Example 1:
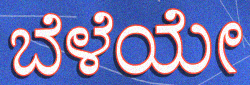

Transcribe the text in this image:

ಬೆಳೆಯೇ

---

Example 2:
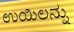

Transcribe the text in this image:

ಉಯಿಲನ್ನು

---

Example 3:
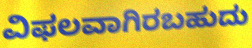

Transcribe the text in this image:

ವಿಫಲವಾಗಿರಬಹುದು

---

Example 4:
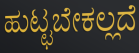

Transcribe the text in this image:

ಹುಟ್ಟಬೇಕಲ್ಲದೆ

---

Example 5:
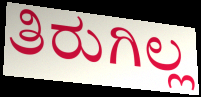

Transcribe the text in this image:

ತಿರುಗಿಲ್ಲ